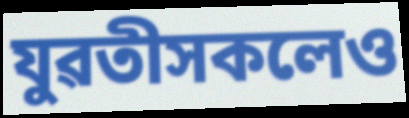
যুৱতীসকলেও